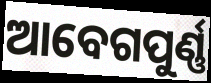
ଆବେଗପୁର୍ଣ୍ଣ